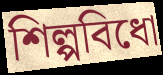
শিল্পবিধো